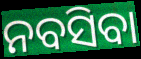
ନବସିବା